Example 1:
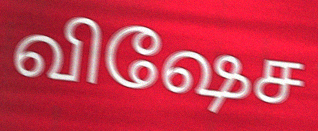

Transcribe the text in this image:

விஷேச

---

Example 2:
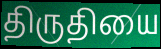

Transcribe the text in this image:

திருதியை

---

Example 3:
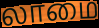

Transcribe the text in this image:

லாமை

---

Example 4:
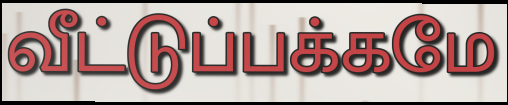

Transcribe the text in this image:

வீட்டுப்பக்கமே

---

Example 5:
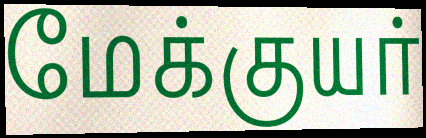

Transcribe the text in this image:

மேக்குயர்